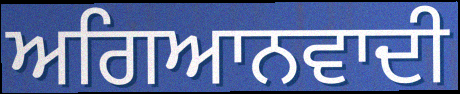
ਅਗਿਆਨਵਾਦੀ